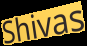
Shivas